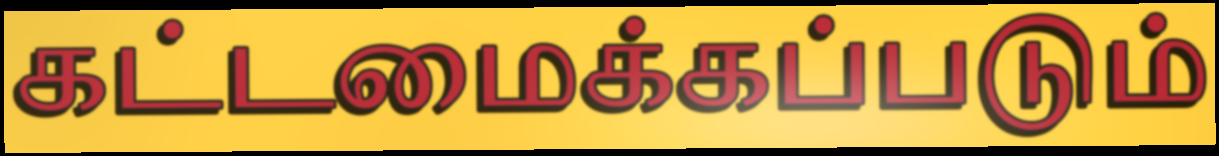
கட்டமைக்கப்படும்